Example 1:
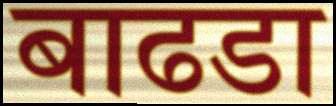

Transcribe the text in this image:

बाढडा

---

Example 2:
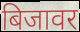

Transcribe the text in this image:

बिजावर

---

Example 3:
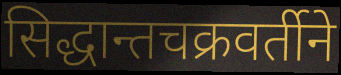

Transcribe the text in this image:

सिद्धान्तचक्रवर्तीने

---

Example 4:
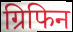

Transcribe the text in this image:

ग्रिफिन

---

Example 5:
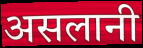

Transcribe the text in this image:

असलानी